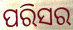
ପରିସର